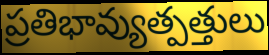
ప్రతిభావ్యుత్పత్తులు